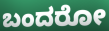
ಬಂದರೋ